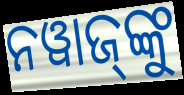
ନୱାଜ୍‍ଙ୍କୁ